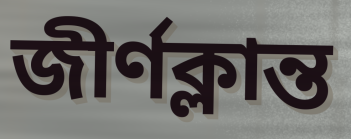
জীর্ণক্লান্ত